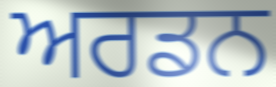
ਅਰਡਨ